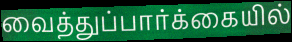
வைத்துப்பார்க்கையில்